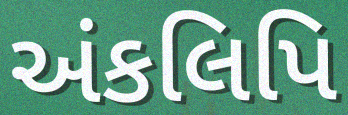
અંકલિપિ